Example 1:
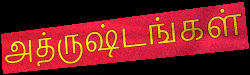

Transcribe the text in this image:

அத்ருஷ்டங்கள்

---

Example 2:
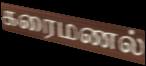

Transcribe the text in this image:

கரைமணல்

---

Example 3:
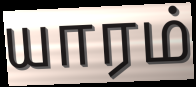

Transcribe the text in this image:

யாரம்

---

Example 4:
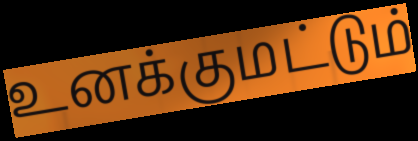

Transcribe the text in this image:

உனக்குமட்டும்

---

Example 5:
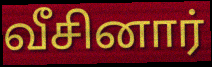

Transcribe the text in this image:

வீசினார்